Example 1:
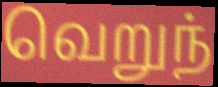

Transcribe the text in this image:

வெறுந்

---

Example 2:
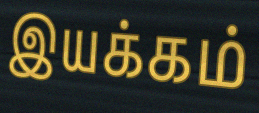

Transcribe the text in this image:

இயக்கம்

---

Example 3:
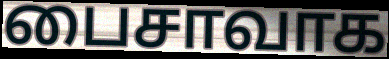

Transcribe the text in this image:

பைசாவாக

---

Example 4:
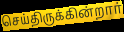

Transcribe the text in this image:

செய்திருக்கின்றார்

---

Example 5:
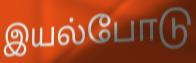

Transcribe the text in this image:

இயல்போடு